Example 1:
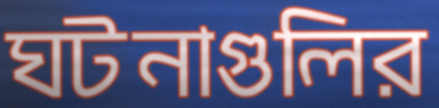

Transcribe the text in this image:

ঘটনাগুলির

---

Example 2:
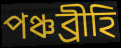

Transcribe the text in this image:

পঞ্চব্রীহি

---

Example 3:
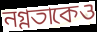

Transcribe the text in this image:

নগ্নতাকেও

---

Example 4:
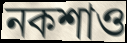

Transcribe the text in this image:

নকশাও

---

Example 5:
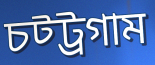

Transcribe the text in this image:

চট্ট্রগাম